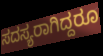
ಸದಸ್ಯರಾಗಿದ್ದರೂ